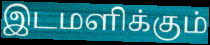
இடமளிக்கும்